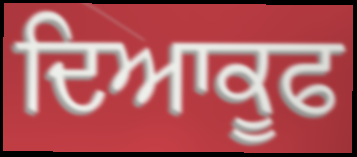
ਦਿਆਕੂਫ